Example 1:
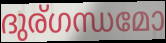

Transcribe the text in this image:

ദുര്ഗന്ധമോ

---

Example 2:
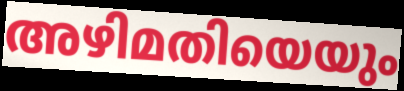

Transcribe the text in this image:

അഴിമതിയെയും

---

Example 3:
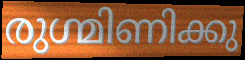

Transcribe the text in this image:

രുഗ്മിണിക്കു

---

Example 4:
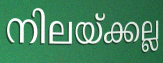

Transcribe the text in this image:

നിലയ്ക്കല്ല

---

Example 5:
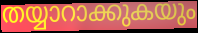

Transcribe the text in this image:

തയ്യാറാക്കുകയും